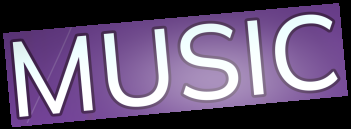
MUSIC